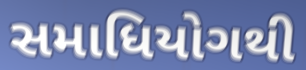
સમાધિયોગથી